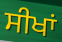
ਸੀਖਾਂ